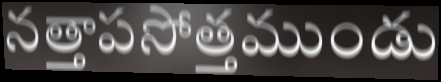
నత్తాపసోత్తముండు